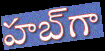
హబ్‌గా